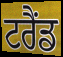
ਟਰੈਂਡ